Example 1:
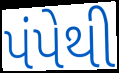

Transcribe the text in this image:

પંપેથી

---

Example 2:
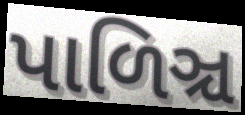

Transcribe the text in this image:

પાળિઞ્ચ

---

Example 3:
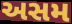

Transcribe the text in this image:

અસમ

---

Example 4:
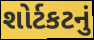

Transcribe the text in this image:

શોર્ટકટનું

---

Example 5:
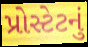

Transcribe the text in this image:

પ્રોસ્ટેટનું